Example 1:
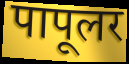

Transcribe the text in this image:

पापूलर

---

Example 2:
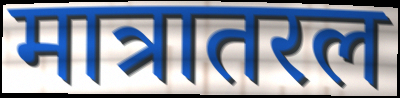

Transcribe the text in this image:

मात्रातरल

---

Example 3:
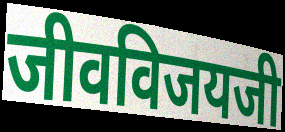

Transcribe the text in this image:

जीवविजयजी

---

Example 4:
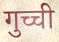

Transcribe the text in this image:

गुच्ची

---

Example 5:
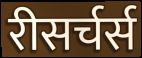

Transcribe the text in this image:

रीसर्चर्स